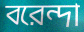
বরেন্দা